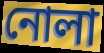
নোলা